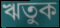
ঋতুক